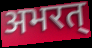
अभरत्